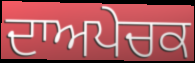
ਦਾਅਪੇਚਕ